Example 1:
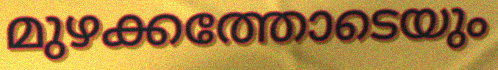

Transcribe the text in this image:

മുഴക്കത്തോടെയും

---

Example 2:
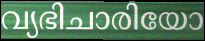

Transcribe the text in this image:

വ്യഭിചാരിയോ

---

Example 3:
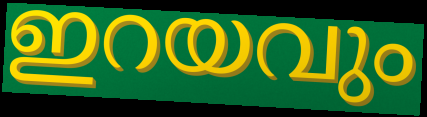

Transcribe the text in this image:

ഇറയവും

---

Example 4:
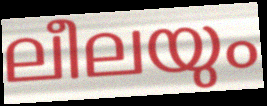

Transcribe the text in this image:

ലീലയും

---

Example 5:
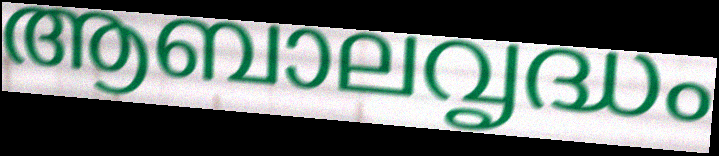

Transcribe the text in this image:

ആബാലവൃദ്ധം